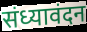
संध्यावंदन